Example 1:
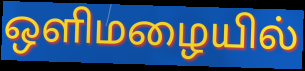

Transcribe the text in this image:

ஒளிமழையில்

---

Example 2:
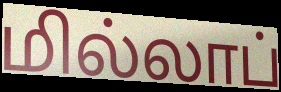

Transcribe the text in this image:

மில்லாப்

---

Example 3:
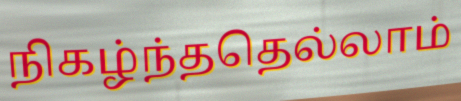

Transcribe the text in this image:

நிகழ்ந்ததெல்லாம்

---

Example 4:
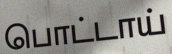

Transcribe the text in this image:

பொட்டாய்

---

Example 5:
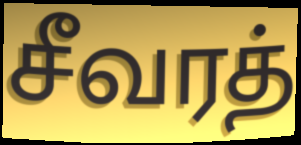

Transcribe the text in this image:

சீவரத்